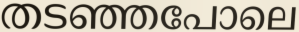
തടഞ്ഞപോലെ